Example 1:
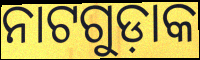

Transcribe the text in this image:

ନାଟଗୁଡ଼ାକ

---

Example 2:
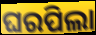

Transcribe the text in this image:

ଘରପିଲା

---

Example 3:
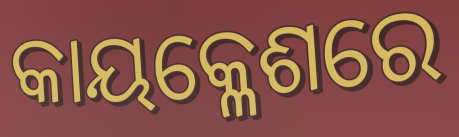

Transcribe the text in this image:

କାୟକ୍ଳେଶରେ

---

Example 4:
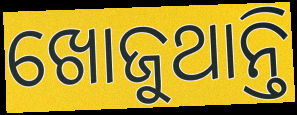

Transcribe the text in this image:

ଖୋଜୁଥାନ୍ତି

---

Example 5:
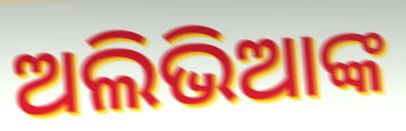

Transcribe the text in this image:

ଅଲିଭିଆଙ୍କ